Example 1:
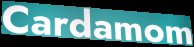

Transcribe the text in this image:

Cardamom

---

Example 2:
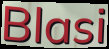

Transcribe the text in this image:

Blasi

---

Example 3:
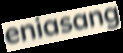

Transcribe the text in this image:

eniasang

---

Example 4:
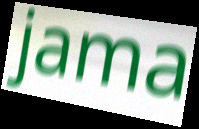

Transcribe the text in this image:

jama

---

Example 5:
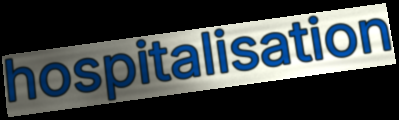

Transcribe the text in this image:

hospitalisation